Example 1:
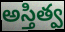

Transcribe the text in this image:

అస్తిత్వ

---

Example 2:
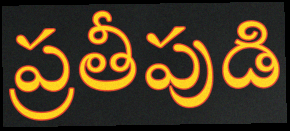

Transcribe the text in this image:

ప్రతీపుడి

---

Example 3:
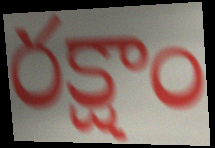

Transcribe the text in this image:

రక్షాం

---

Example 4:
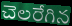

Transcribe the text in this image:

చెలరేగిన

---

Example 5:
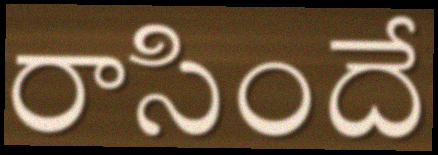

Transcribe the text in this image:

రాసిందే